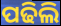
ପଢିଲି